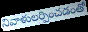
నివాళులర్పించడంతో